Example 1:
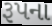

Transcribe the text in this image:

રૂપના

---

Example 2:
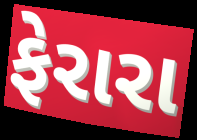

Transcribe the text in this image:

ફેરારા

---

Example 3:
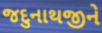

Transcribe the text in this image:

જદુનાથજીને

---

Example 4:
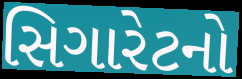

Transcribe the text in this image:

સિગારેટનો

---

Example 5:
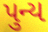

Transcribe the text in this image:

પુન્ય